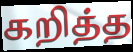
கறித்த